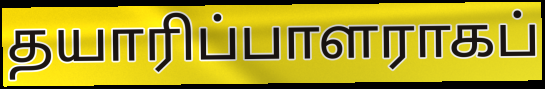
தயாரிப்பாளராகப்